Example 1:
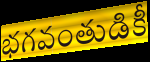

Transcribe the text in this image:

భగవంతుడికీ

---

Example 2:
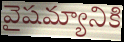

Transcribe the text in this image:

వైషమ్యానికి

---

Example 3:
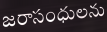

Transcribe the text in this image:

జరాసంధులను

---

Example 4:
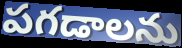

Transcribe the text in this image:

పగడాలను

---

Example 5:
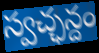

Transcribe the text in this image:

స్వచ్ఛన్దం